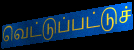
வெட்டுப்பட்டுச்